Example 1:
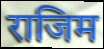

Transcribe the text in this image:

राजिम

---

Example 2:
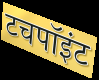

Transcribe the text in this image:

टचपॉइंट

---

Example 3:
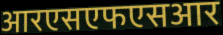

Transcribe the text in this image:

आरएसएफएसआर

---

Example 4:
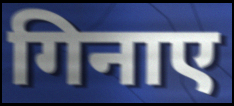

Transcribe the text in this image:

गिनाए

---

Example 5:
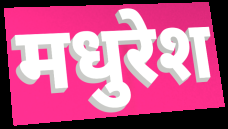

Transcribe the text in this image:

मधुरेश